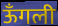
ऊँगली